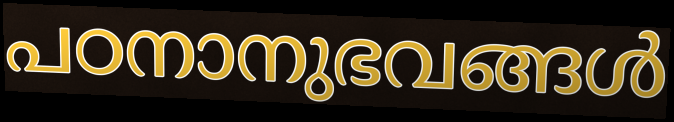
പഠനാനുഭവങ്ങൾ